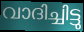
വാദിച്ചിട്ടു